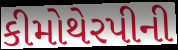
કીમોથેરપીની